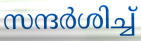
സന്ദർശിച്ച്